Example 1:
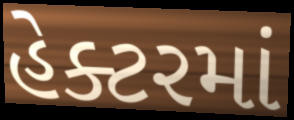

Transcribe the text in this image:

હેક્ટરમાં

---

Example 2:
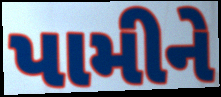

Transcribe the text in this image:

પામીને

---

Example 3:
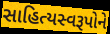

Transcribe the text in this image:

સાહિત્યસ્વરૂપોને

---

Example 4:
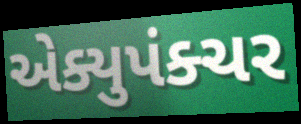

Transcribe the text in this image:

એક્યુપંક્ચર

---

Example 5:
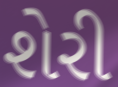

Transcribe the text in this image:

શેરી